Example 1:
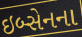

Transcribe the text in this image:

ઇબ્સેનના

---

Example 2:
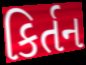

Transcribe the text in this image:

કિર્તન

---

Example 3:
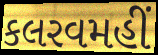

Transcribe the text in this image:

કલરવમહીં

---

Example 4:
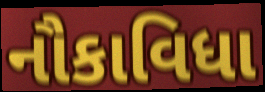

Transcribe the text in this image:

નૌકાવિધા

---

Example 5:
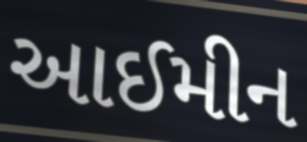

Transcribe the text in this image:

આઈમીન